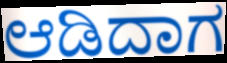
ಆಡಿದಾಗ